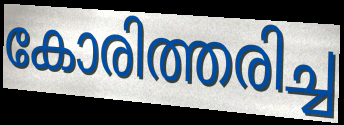
കോരിത്തരിച്ച